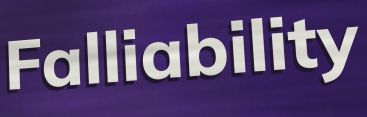
Falliability